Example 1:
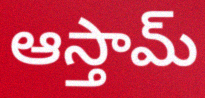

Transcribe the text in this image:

ఆస్తామ్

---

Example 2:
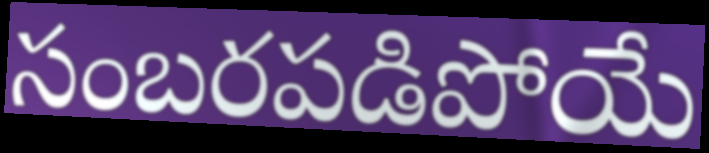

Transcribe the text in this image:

సంబరపడిపోయే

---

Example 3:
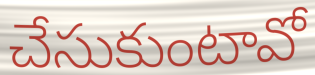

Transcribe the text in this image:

చేసుకుంటావో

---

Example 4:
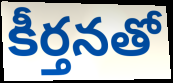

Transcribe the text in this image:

కీర్తనతో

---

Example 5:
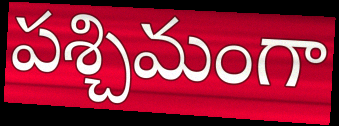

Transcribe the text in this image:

పశ్చిమంగా